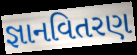
જ્ઞાનવિતરણ